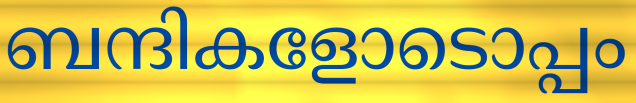
ബന്ദികളോടൊപ്പം